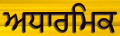
ਅਧਾਰਮਿਕ